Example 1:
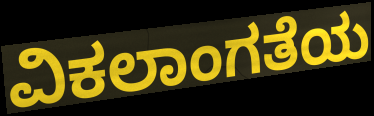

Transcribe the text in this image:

ವಿಕಲಾಂಗತೆಯ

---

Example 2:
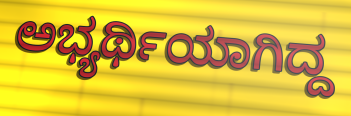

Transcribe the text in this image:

ಅಭ್ಯರ್ಥಿಯಾಗಿದ್ದ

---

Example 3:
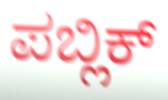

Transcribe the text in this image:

ಪಬ್ಲಿಕ್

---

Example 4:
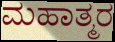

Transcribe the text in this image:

ಮಹಾತ್ಮರ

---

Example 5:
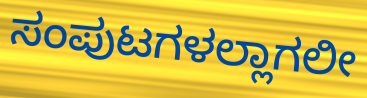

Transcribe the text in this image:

ಸಂಪುಟಗಳಲ್ಲಾಗಲೀ